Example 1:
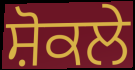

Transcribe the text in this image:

ਸ਼ੋਕਲੇ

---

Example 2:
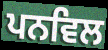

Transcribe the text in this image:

ਪਨਵਿਲ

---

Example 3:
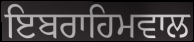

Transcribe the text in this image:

ਇਬਰਾਹਿਮਵਾਲ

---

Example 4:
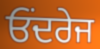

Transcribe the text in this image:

ਓਂਦਰੇਜ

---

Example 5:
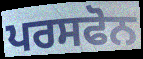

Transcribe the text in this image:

ਪਰਸਫੋਨ